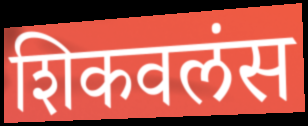
शिकवलंस